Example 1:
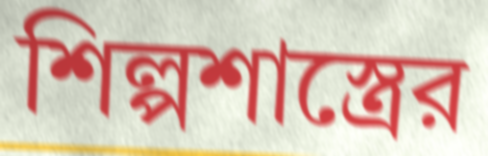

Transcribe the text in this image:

শিল্পশাস্ত্রের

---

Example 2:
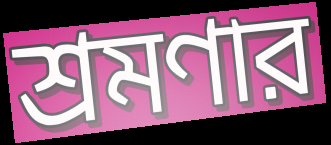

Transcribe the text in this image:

শ্রমণার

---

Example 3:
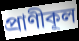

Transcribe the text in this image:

প্রাণীকূল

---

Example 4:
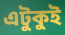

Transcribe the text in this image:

এটুকুই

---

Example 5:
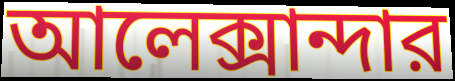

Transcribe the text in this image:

আলেক্সান্দার